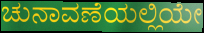
ಚುನಾವಣೆಯಲ್ಲಿಯೇ